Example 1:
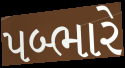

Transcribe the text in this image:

પબ્ભારે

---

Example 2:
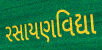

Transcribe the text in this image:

રસાયણવિદ્યા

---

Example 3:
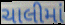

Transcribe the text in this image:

ચાલીમાં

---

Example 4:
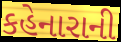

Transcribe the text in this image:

કહેનારાની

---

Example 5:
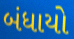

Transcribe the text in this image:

બંધાયો